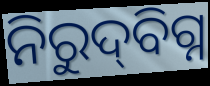
ନିରୁଦ୍‌ବିଗ୍ନ